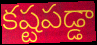
కష్టపడ్డా